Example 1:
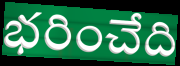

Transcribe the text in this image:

భరించేది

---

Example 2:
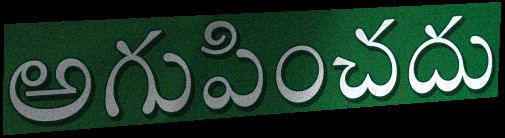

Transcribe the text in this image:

అగుపించదు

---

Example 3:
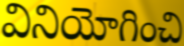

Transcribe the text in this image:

వినియోగించి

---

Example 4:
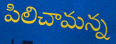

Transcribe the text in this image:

పిలిచామన్న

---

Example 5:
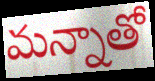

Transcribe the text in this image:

మన్నాతో